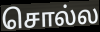
சொல்ல